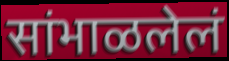
सांभाळलेलं